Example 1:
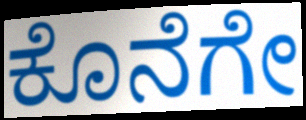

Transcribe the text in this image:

ಕೊನೆಗೇ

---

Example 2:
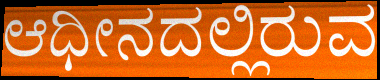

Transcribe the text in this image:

ಆಧೀನದಲ್ಲಿರುವ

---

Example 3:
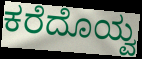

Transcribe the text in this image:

ಕರೆದೊಯ್ವ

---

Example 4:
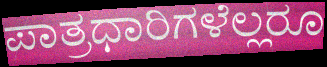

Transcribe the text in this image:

ಪಾತ್ರಧಾರಿಗಳೆಲ್ಲರೂ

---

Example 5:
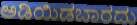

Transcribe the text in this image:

ಅಡಿಯಿಡಬಾರದು